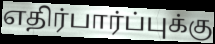
எதிர்பார்ப்புக்கு